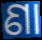
ଣା